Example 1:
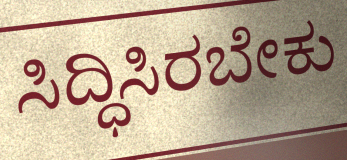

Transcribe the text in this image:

ಸಿದ್ಧಿಸಿರಬೇಕು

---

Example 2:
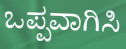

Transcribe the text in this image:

ಒಪ್ಪವಾಗಿಸಿ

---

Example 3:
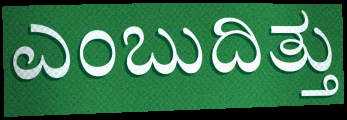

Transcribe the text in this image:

ಎಂಬುದಿತ್ತು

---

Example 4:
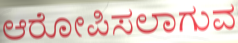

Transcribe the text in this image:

ಆರೋಪಿಸಲಾಗುವ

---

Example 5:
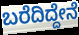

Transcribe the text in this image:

ಬರೆದಿದ್ದೇನೆ